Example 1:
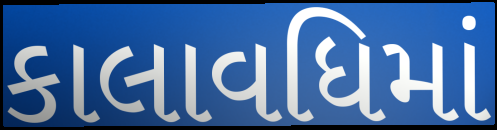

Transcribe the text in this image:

કાલાવધિમાં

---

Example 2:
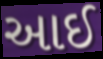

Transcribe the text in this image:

આઈ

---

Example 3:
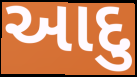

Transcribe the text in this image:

આદુ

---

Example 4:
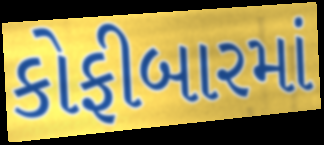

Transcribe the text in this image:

કોફીબારમાં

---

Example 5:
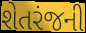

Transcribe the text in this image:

શેતરંજની